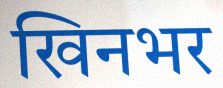
खिनभर